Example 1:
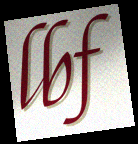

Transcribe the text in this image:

lbf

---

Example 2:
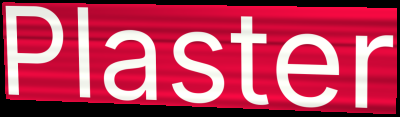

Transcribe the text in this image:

Plaster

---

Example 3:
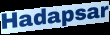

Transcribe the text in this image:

Hadapsar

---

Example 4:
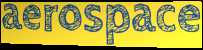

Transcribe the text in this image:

aerospace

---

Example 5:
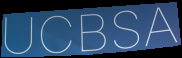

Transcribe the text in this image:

UCBSA